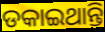
ଡକାଇଥାନ୍ତି